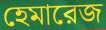
হেমারেজ